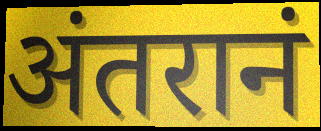
अंतरानं